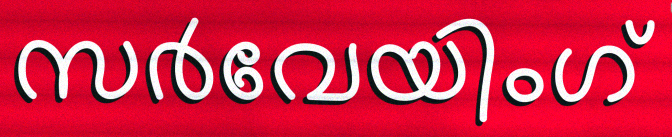
സർവേയിംഗ്